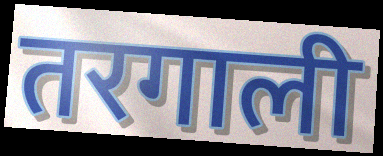
तरगाली